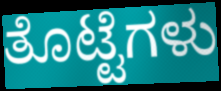
ತೊಟ್ಟೆಗಳು